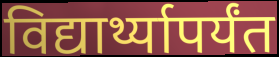
विद्यार्थ्यापर्यंत